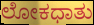
ಲೋಕಧಾತು